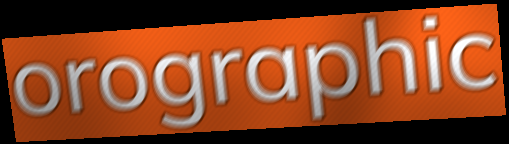
orographic